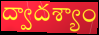
ద్వాదశ్యాం